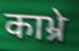
काभ्रे